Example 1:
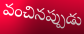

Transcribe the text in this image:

వంచినప్పుడు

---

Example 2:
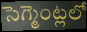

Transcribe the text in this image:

సెగ్మెంట్లలో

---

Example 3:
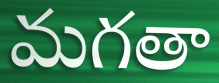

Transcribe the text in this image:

మగతా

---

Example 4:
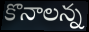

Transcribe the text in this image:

కొనాలన్న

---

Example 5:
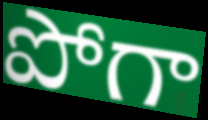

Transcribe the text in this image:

పోగా